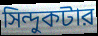
সিন্দুকটার